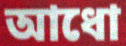
আধো